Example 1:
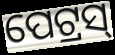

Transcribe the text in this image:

ପେଟ୍ରସ୍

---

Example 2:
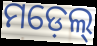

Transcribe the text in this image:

ମଡ଼େଲ୍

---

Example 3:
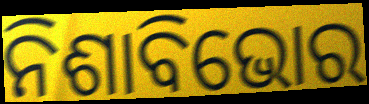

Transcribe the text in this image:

ନିଶାବିଭୋର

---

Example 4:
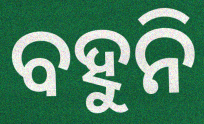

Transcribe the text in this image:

ବହୁନି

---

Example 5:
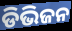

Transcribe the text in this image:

ଡିଭିଜନ